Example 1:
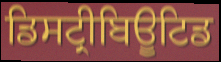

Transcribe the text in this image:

ਡਿਸਟ੍ਰੀਬਿਊਟਿਡ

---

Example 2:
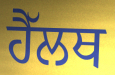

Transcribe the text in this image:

ਹੈੱਲਥ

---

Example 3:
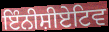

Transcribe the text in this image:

ਇੰਨੀਸ਼ੀਏਟਿਵ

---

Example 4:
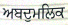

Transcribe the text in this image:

ਅਬਦੁਮਲਿਕ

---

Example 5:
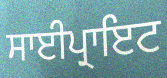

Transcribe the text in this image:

ਸਾਈਪ੍ਰਾਇਟ